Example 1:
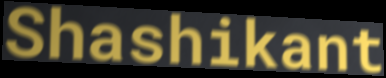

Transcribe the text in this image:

Shashikant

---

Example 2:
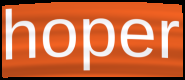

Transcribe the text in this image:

hoper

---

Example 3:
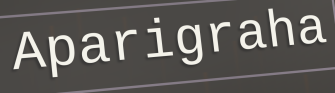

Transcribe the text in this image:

Aparigraha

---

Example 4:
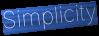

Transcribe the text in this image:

Simplicity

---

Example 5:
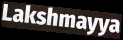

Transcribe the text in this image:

Lakshmayya